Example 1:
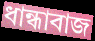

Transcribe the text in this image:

ধান্ধাবাজ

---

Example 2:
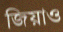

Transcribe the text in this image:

জিয়াও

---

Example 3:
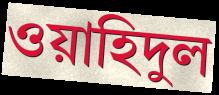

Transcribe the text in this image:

ওয়াহিদুল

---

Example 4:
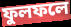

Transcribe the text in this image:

ফুলফলে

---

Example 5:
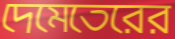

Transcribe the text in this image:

দেমেতেরের